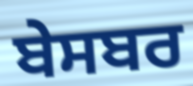
ਬੇਸਬਰ